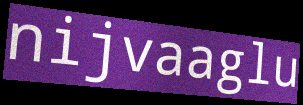
nijvaaglu